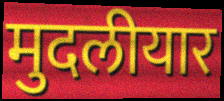
मुदलीयार